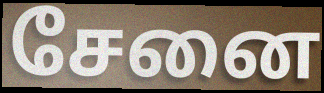
சேனை